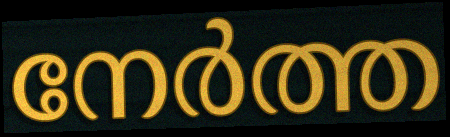
നേർത്ത